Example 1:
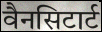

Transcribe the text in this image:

वैनसिटार्ट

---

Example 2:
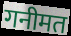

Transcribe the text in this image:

गनीमत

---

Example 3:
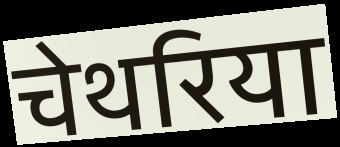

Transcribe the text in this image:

चेथरिया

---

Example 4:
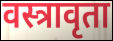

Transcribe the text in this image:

वस्त्रावृता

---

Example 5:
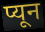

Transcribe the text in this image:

प्यून